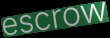
escrow